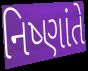
નિષ્ણાંતે